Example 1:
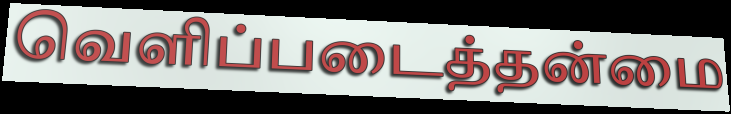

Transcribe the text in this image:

வெளிப்படைத்தன்மை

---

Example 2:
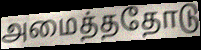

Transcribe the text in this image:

அமைத்ததோடு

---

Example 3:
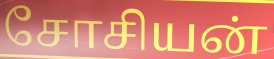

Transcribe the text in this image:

சோசியன்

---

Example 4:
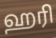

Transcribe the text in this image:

ஹரி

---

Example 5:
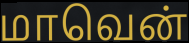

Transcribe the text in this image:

மாவென்